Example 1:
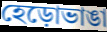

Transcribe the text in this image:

হেড়োভাঙা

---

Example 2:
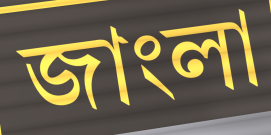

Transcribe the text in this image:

জাংলা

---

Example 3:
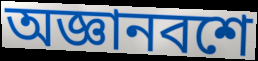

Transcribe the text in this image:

অজ্ঞানবশে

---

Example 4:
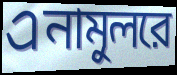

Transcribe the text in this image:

এনামুলরে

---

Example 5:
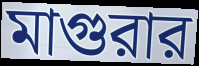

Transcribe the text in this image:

মাগুরার